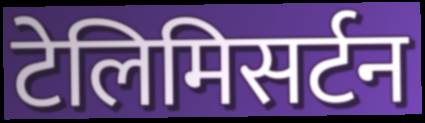
टेलिमिसर्टन